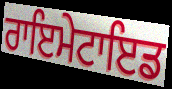
ਰਾਇਮੇਟਾਇਡ